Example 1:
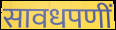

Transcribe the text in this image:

सावधपणीं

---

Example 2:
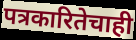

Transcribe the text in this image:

पत्रकारितेचाही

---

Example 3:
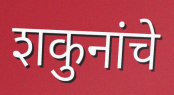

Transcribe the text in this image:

शकुनांचे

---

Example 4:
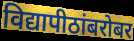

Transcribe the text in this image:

विद्यापीठांबरोबर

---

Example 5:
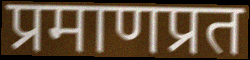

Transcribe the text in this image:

प्रमाणप्रत